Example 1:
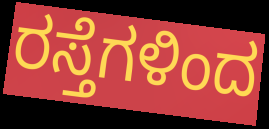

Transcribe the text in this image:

ರಸ್ತೆಗಳಿಂದ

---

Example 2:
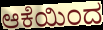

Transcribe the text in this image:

ಆಕೆಯಿಂದ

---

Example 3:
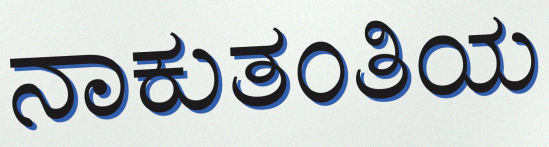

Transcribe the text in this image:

ನಾಕುತಂತಿಯ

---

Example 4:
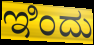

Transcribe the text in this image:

ಇಿಂದು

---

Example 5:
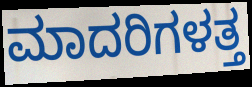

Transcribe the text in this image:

ಮಾದರಿಗಳತ್ತ